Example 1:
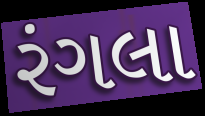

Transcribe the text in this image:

રંગલા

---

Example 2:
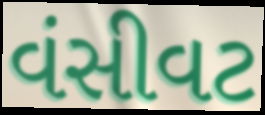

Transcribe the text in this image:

વંસીવટ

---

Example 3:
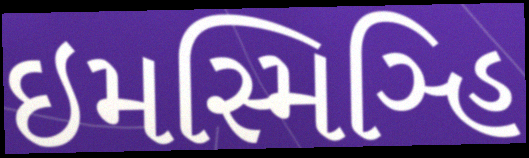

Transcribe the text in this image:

ઇમસ્મિઞ્હિ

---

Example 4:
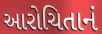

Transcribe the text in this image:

આરોચિતાનં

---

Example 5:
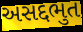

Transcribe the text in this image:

અસદ્દભુત